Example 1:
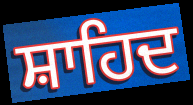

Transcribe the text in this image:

ਸ਼ਾਹਿਦ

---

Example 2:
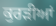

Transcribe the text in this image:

ਕੁਰੜੀਆਂ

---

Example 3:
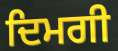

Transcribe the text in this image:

ਦਿਮਗੀ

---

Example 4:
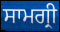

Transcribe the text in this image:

ਸਾਮਗ੍ਰੀ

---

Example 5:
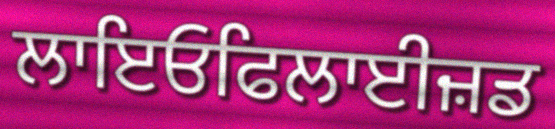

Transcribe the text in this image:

ਲਾਇਓਫਿਲਾਈਜ਼ਡ